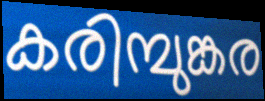
കരിമ്പുങ്കര